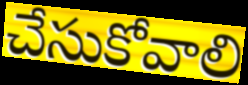
చేసుకోవాలి